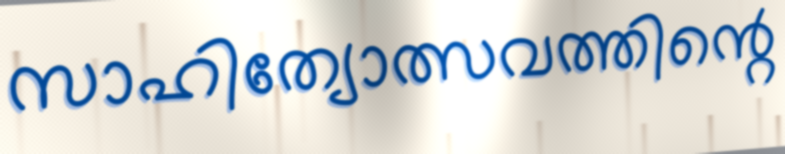
സാഹിത്യോത്സവത്തിന്റെ